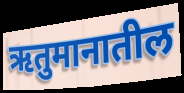
ऋतुमानातील